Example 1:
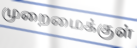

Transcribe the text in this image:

முறைமைக்குள்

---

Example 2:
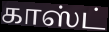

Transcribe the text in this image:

காஸ்ட்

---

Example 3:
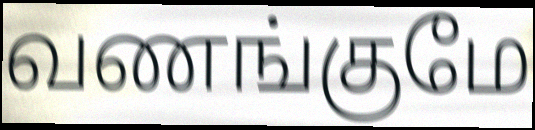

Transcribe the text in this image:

வணங்குமே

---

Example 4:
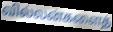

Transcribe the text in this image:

வில்லன்களைத்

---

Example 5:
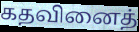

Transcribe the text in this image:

கதவினைத்